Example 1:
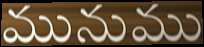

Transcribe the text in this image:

మునుము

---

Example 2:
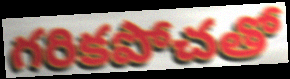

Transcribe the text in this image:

గరికపోచతో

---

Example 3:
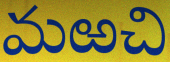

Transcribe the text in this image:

మఱచి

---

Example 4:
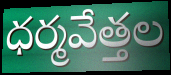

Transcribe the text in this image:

ధర్మవేత్తల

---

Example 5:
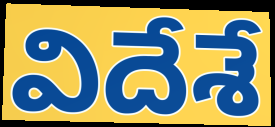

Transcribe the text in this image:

విదేశే